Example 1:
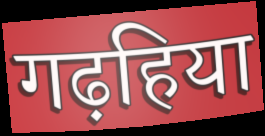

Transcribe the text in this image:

गढ़हिया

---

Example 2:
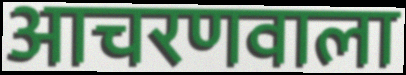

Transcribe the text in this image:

आचरणवाला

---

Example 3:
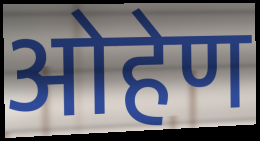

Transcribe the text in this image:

ओहेण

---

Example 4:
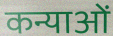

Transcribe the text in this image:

कन्‍याओं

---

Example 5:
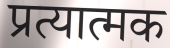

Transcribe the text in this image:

प्रत्यात्मक